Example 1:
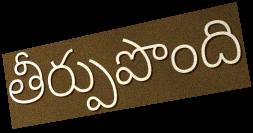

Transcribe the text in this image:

తీర్పుపొంది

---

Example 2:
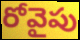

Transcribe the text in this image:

రోవైపు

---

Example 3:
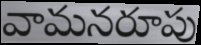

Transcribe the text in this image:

వామనరూపు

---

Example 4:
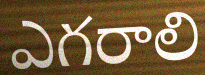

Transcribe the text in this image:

ఎగరాలి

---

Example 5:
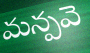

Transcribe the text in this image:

మన్పవె